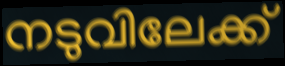
നടുവിലേക്ക്